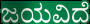
ಜಯವಿದೆ